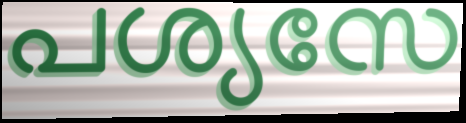
പശ്യസേ